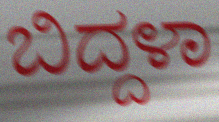
ಬಿದ್ದಳಾ